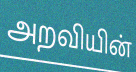
அறவியின்